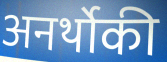
अनर्थोकी